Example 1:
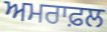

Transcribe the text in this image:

ਅਮਰਾਫ਼ਲ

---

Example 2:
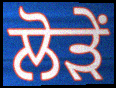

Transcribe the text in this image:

ਲੋੜੇਂ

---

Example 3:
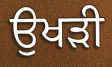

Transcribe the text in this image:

ਉਖੜੀ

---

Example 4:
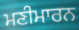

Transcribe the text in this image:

ਮਣੀਮਾਰਨ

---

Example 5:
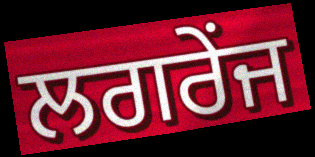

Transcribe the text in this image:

ਲਗਰੇਂਜ